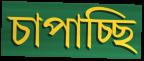
চাপাচ্ছি